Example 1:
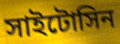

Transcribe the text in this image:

সাইটোসিন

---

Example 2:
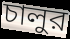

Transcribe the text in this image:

চালুর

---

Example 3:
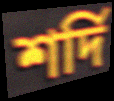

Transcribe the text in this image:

শর্দি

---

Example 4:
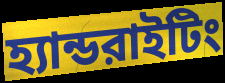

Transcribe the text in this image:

হ্যান্ডরাইটিং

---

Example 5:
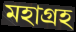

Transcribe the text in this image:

মহাগ্রহ